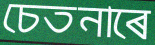
চেতনাৰে